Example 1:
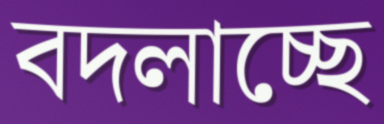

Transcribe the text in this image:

বদলাচ্ছে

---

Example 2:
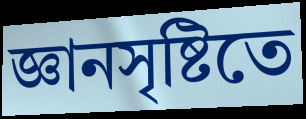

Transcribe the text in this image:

জ্ঞানসৃষ্টিতে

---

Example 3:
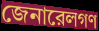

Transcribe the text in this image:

জেনারেলগণ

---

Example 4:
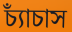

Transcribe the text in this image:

চ্যাঁচাস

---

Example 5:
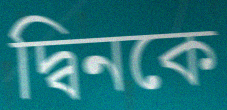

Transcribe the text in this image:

দ্বিনকে